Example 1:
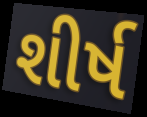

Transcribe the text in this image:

શીર્ષ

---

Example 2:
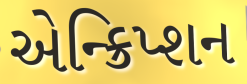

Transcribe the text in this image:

એન્ક્રિપ્શન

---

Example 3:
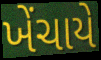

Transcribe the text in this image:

ખેંચાયે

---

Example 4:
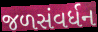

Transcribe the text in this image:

જળસંવર્ધન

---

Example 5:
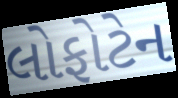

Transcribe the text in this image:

લોફોટેન